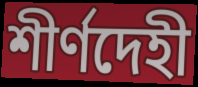
শীর্ণদেহী